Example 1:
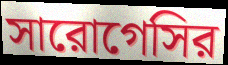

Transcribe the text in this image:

সারোগেসির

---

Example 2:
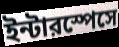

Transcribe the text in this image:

ইন্টারস্পেসে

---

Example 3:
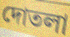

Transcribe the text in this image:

দোতলা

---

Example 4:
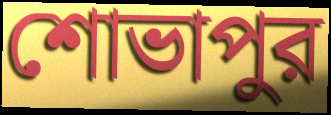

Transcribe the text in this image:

শোভাপুর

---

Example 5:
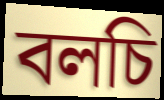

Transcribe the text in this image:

বলচি